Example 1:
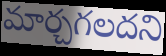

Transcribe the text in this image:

మార్చగలదని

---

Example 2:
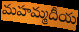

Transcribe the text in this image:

మహమ్మదీయ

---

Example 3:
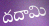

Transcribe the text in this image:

దదామి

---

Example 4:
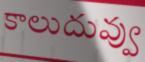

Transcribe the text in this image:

కాలుదువ్వు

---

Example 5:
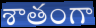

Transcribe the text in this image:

శాతంగా